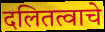
दलितत्वाचे